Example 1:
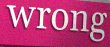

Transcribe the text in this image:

wrong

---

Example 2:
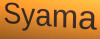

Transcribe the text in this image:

Syama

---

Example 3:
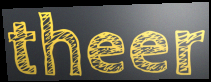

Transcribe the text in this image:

theer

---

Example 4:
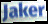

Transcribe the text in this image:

Jaker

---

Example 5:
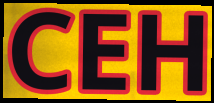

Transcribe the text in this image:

CEH